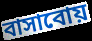
বাসাবোয়